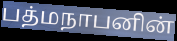
பத்மநாபனின்